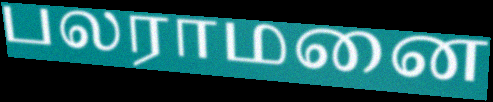
பலராமனை